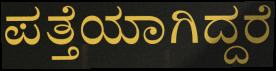
ಪತ್ತೆಯಾಗಿದ್ದರೆ